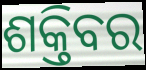
ଶକ୍ତିବର